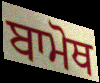
ਬਾਮੋਥ